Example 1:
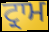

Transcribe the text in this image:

ਟ੍ਰਾਮ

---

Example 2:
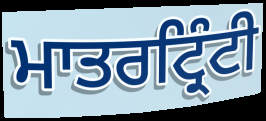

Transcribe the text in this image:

ਮਾਤਰਟ੍ਰਿੰਟੀ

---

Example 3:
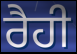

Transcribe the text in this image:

ਰੈਹੀ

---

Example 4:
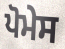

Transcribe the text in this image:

ਪੋਮੇਸ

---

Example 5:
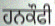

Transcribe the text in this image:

ਹਨਕੌਫੀ